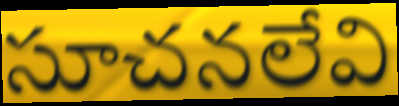
సూచనలేవి